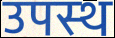
उपस्थ